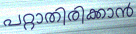
പറ്റാതിരിക്കാൻ